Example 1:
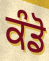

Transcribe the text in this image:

ਕੰਡੋ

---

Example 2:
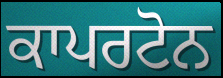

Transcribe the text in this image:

ਕਾਪਰਟੋਨ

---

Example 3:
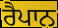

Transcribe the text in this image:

ਰੈਪਾਨ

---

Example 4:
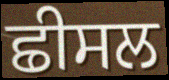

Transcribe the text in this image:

ਛੀਸਲ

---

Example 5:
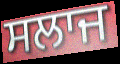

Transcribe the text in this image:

ਸਲਾਜ